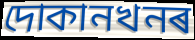
দোকানখনৰ